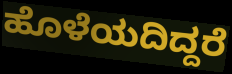
ಹೊಳೆಯದಿದ್ದರೆ